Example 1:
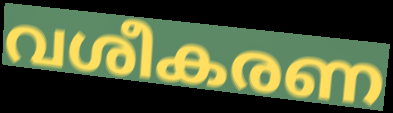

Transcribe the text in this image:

വശീകരണ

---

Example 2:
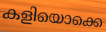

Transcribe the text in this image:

കളിയൊക്കെ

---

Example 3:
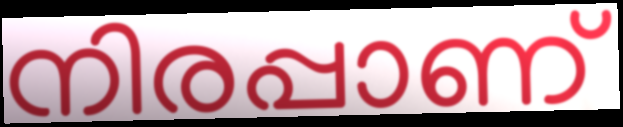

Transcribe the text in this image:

നിരപ്പാണ്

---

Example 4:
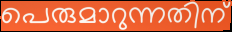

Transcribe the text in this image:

പെരുമാറുന്നതിന്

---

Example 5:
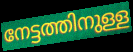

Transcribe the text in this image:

നേട്ടത്തിനുള്ള